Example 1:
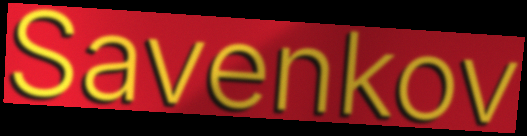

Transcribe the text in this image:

Savenkov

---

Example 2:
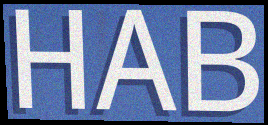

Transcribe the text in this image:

HAB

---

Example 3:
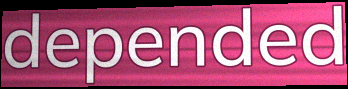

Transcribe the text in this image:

depended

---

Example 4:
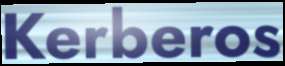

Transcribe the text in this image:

Kerberos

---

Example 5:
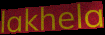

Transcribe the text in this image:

lakhela